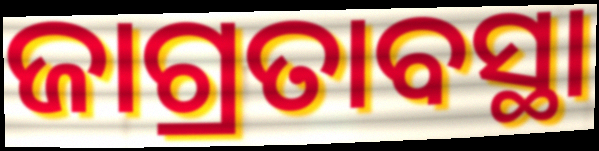
ଜାଗ୍ରତାବସ୍ଥା